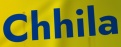
Chhila